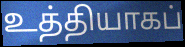
உத்தியாகப்